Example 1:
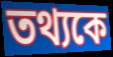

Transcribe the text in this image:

তথ্যকে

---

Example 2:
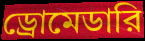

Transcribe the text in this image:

ড্রোমেডারি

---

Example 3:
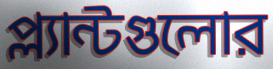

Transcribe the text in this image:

প্ল্যান্টগুলোর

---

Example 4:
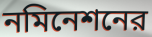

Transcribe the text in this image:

নমিনেশনের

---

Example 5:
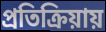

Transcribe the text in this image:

প্রতিক্রিয়ায়